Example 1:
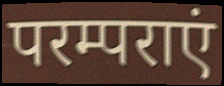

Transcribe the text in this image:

परम्पराएं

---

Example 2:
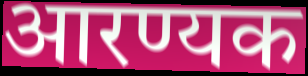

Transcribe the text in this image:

आरण्यक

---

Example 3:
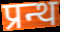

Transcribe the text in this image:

प्रन्थ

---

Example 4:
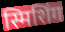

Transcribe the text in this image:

स्मिशिंग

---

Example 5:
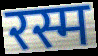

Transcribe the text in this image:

रस्म